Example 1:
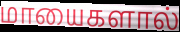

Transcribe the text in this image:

மாயைகளால்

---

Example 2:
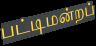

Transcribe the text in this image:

பட்டிமன்றப்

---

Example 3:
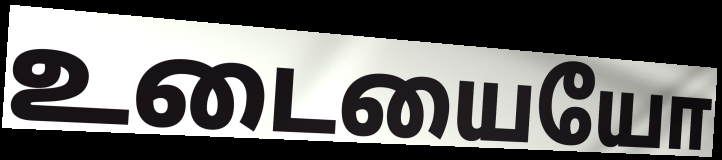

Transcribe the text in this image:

உடையையோ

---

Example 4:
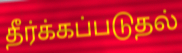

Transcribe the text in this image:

தீர்க்கப்படுதல்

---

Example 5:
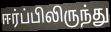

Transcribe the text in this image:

ஈர்ப்பிலிருந்து